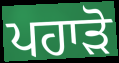
ਪਹਾੜੋ